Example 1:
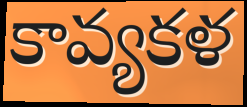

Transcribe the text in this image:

కావ్యకళ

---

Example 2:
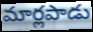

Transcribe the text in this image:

మార్లపాడు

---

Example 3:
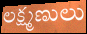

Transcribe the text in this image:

లక్ష్మణులు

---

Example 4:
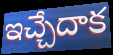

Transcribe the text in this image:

ఇచ్చేదాక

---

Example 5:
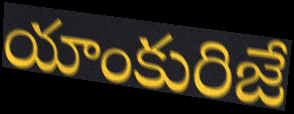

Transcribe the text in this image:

యాంకురిజే